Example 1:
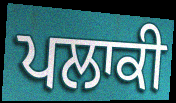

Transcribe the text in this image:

ਪਲਾਕੀ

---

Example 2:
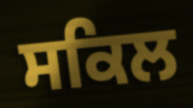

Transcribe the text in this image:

ਸਕਿਲ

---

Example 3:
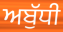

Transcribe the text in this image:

ਅਬੁੱਧੀ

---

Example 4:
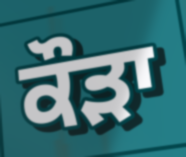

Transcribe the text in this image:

ਕੌਡ਼ਾ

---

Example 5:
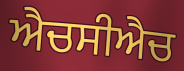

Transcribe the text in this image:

ਐਚਸੀਐਚ